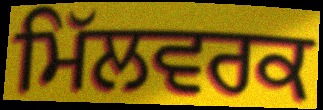
ਮਿੱਲਵਰਕ